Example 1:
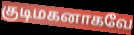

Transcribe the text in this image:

குடிமகனாகவே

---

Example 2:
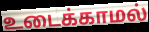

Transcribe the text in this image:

உடைக்காமல்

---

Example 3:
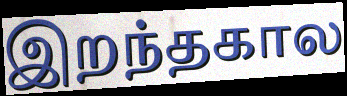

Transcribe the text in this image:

இறந்தகால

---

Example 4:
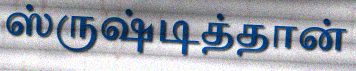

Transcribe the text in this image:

ஸ்ருஷ்டித்தான்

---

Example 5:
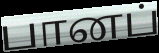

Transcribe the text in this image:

பானப்